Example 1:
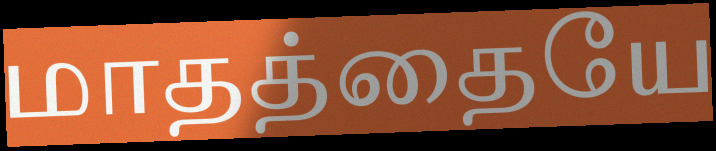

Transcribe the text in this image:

மாதத்தையே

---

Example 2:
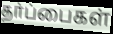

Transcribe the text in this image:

தர்ப்பைகள்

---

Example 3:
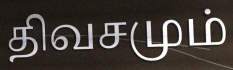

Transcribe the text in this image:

திவசமும்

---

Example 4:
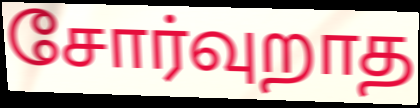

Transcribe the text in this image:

சோர்வுறாத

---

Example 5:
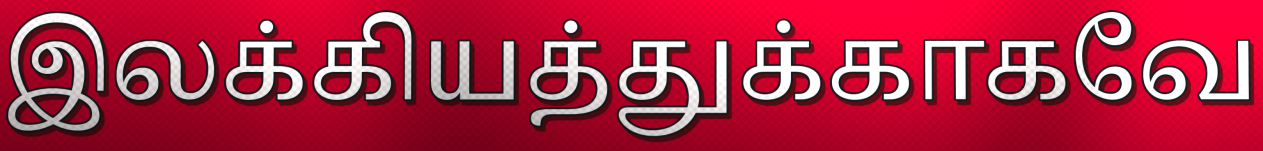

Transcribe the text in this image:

இலக்கியத்துக்காகவே